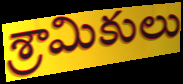
శ్రామికులు